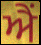
ਐੰ